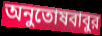
অনুতোষবাবুর